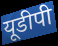
यूडीपी